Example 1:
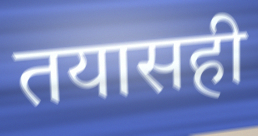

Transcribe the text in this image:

तयासही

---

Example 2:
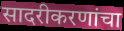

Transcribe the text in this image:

सादरीकरणांचा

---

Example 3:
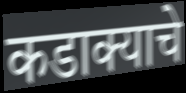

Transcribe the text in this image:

कडाक्याचे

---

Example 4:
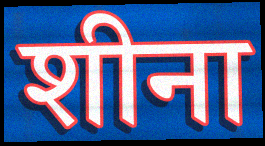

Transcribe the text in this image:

शीना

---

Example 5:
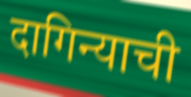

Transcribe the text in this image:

दागिन्याची